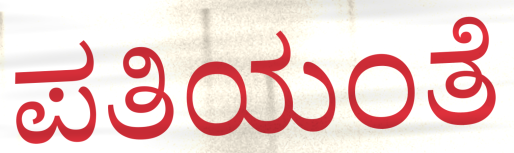
ಪತಿಯಂತೆ